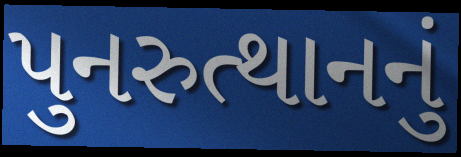
પુનરુત્થાનનું